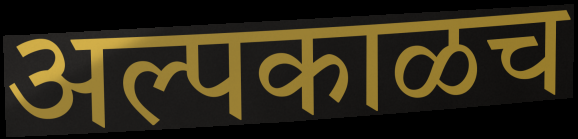
अल्पकाळच